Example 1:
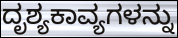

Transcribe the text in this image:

ದೃಶ್ಯಕಾವ್ಯಗಳನ್ನು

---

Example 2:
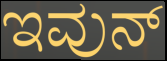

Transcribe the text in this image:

ಇವುನ್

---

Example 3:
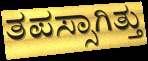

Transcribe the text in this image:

ತಪಸ್ಸಾಗಿತ್ತು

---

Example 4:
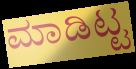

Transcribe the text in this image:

ಮಾಡಿಟ್ಟ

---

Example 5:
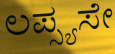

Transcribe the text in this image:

ಲಪ್ಸ್ಯಸೇ